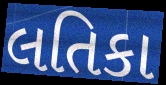
લતિકા